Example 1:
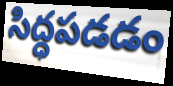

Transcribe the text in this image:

సిద్ధపడడం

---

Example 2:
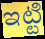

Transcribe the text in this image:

ఇట్టి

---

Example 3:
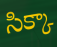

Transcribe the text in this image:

సిక్కా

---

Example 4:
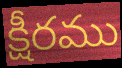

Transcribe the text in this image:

క్షీరము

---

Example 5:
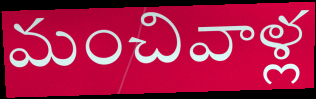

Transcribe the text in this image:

మంచివాళ్ల